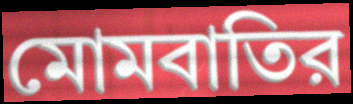
মোমবাতির